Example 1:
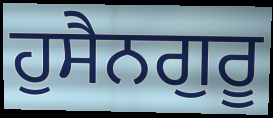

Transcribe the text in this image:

ਹੁਸੈਨਗੁਰੂ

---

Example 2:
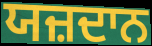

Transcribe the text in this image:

ਯਜ਼ਦਾਨ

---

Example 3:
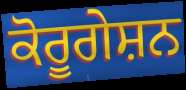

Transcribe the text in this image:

ਕੋਰੂਗੇਸ਼ਨ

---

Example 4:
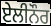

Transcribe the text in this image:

ਏਲੀਨੌਰ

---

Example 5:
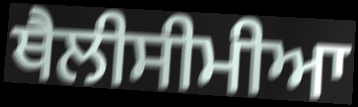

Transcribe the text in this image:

ਥੈਲੀਸੀਮੀਆ